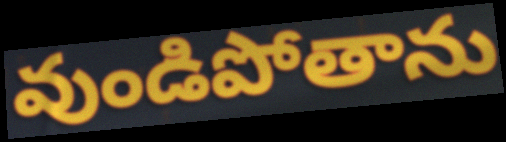
వుండిపోతాను